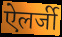
ऐलर्जी